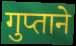
गुप्ताने